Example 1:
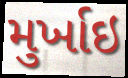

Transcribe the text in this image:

મુર્ખાઇ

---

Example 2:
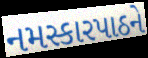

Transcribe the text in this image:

નમસ્કારપાઠને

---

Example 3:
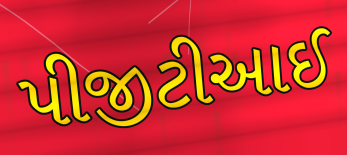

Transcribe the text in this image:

પીજીટીઆઈ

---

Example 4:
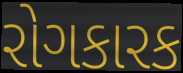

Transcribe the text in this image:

રોગકારક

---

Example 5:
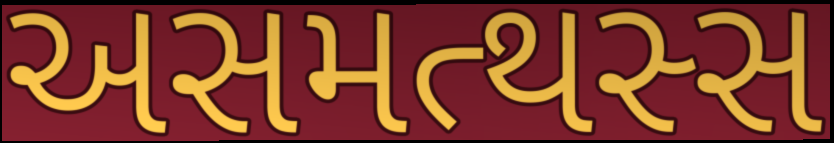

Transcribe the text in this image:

અસમત્થસ્સ